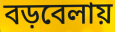
বড়বেলায়